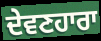
ਦੇਵਣਹਾਰਾ